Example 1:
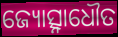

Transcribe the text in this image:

ଜ୍ୟୋତ୍ସ୍ନାଧୌତ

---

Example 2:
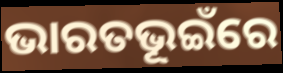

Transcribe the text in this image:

ଭାରତଭୂଇଁରେ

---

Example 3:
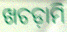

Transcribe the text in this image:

ଖଚଡ଼ାମି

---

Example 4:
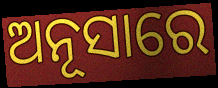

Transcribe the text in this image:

ଅନୂସାରେ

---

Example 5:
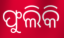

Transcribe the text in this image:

ଫୁଲିକି